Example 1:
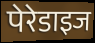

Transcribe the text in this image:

पेरेडाइज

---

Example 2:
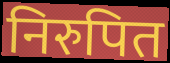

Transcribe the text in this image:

निरुपित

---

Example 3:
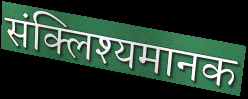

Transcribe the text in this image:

संक्लिश्यमानक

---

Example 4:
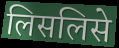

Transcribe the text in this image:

लिसलिसे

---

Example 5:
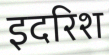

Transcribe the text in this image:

इदरिश